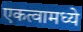
एकत्वामध्ये